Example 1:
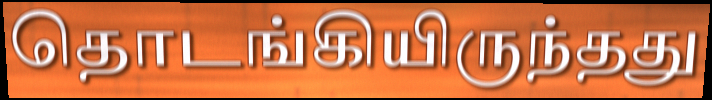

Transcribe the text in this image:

தொடங்கியிருந்தது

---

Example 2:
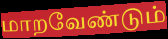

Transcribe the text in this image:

மாறவேண்டும்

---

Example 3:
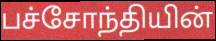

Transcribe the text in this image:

பச்சோந்தியின்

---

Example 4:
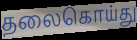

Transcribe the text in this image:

தலைகொய்து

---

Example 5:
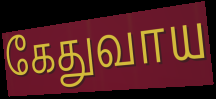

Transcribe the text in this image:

கேதுவாய